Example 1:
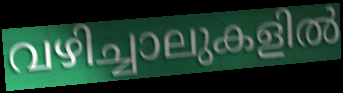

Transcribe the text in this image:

വഴിച്ചാലുകളിൽ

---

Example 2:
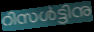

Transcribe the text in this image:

റിസൾട്ടിനു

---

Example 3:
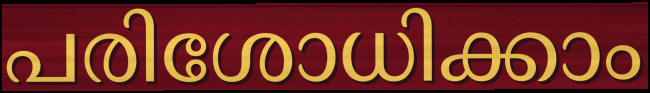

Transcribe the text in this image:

പരിശോധിക്കാം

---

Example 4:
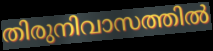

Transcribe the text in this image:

തിരുനിവാസത്തിൽ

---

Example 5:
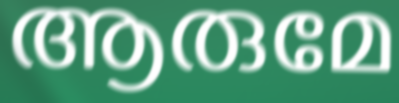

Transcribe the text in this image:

ആരുമേ